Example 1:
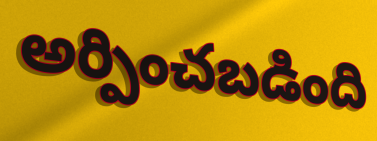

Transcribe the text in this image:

అర్పించబడింది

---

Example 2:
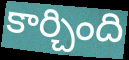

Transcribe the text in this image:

కార్చింది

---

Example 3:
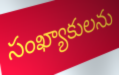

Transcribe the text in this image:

సంఖ్యాకులను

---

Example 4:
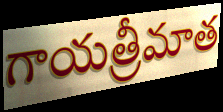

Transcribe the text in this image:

గాయత్రీమాత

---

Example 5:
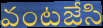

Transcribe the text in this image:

వంటజేసి